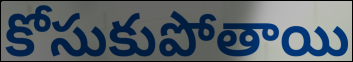
కోసుకుపోతాయి